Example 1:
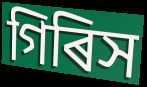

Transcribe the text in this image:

গিৰিস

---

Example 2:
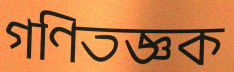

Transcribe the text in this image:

গণিতজ্ঞক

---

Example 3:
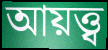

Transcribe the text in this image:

আয়ত্ত্ব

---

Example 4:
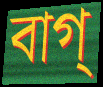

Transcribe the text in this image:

বাগ্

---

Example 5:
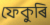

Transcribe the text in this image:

ফেকুৰি